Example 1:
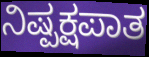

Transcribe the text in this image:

ನಿಷ್ಪಕ್ಷಪಾತ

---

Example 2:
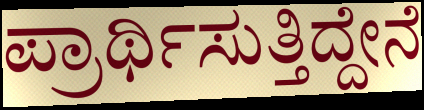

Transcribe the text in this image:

ಪ್ರಾರ್ಥಿಸುತ್ತಿದ್ದೇನೆ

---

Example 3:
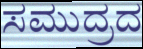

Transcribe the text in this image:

ಸಮುದ್ರದ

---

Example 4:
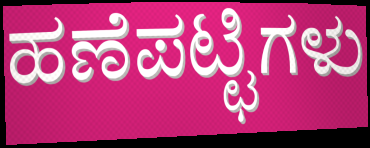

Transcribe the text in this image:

ಹಣೆಪಟ್ಟಿಗಳು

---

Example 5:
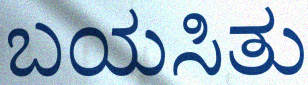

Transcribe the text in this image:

ಬಯಸಿತು